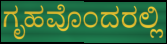
ಗೃಹವೊಂದರಲ್ಲಿ